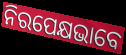
ନିରପେକ୍ଷଭାବେ